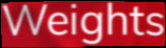
Weights